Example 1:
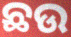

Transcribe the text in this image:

ଛଉ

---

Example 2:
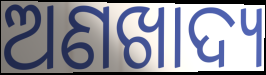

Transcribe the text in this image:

ଅଣଖାଦ୍ୟ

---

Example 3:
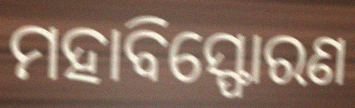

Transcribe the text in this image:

ମହାବିସ୍ଫୋରଣ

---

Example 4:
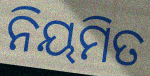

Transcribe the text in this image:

ନିୟମିତ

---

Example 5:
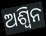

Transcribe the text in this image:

ଅଶ୍ଵିନ